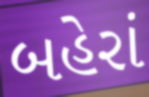
બહેરાં